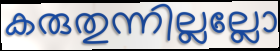
കരുതുന്നില്ലല്ലോ